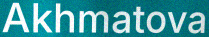
Akhmatova